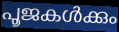
പൂജകൾക്കും